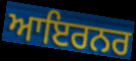
ਆਇਰਨਰ